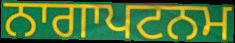
ਨਾਗਾਪਟਨਮ